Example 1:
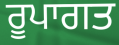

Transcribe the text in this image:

ਰੂਪਾਗਤ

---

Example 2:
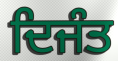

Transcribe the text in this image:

ਦਿਜੰਤ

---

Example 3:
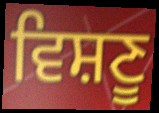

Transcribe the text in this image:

ਵਿਸ਼ਣੂ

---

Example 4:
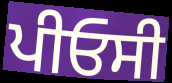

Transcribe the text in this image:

ਪੀਓਸੀ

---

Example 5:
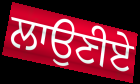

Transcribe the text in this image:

ਲਾਉਣੀਏ